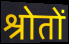
श्रोतों